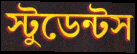
স্টুডেন্টস